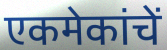
एकमेकांचें